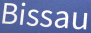
Bissau